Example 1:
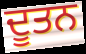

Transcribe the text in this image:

ਦੂਤਨ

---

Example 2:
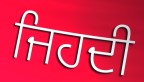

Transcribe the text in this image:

ਜਿਹਦੀ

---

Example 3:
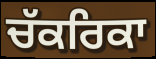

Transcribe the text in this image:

ਚੱਕਰਿਕਾ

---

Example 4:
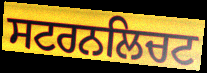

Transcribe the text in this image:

ਸਟਰਨਲਿਚਟ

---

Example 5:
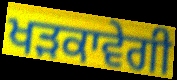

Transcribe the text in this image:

ਖੜਕਾਵੇਗੀ